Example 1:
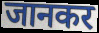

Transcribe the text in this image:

जानकर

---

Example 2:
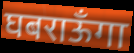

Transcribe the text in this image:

घबराऊँगा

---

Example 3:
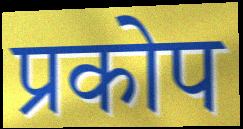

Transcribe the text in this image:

प्रकोप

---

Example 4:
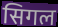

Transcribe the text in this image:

सिगल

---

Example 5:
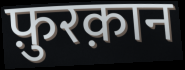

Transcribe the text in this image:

फ़ुरक़ान